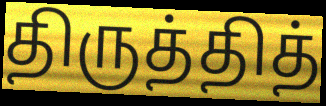
திருத்தித்